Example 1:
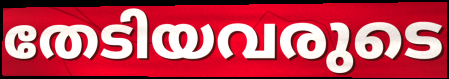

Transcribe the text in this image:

തേടിയവരുടെ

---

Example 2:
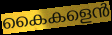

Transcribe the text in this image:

കൈകളെൻ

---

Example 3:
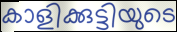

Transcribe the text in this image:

കാളിക്കുട്ടിയുടെ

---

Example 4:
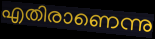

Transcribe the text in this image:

എതിരാണെന്നു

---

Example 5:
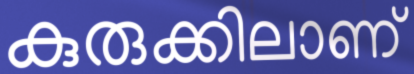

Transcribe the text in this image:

കുരുക്കിലാണ്